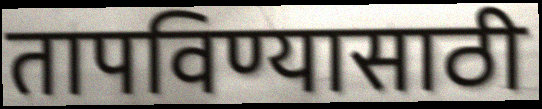
तापविण्यासाठी